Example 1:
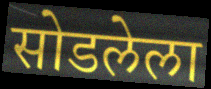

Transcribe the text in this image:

सोडलेला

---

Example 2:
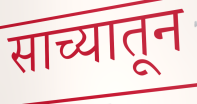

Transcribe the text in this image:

साच्यातून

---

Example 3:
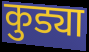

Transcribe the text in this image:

कुड्या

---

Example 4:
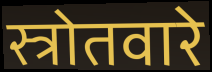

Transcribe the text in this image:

स्त्रोतवारे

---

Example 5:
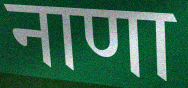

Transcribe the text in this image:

नाणा